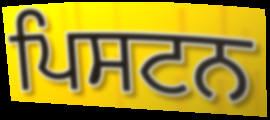
ਪਿਸਟਨ